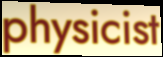
physicist